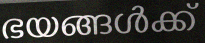
ഭയങ്ങൾക്ക്